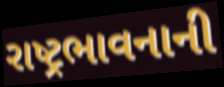
રાષ્ટ્રભાવનાની